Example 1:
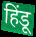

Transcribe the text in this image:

हिंडू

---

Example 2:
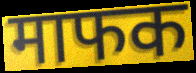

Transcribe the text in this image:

माफक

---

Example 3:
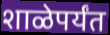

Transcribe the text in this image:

शाळेपर्यंत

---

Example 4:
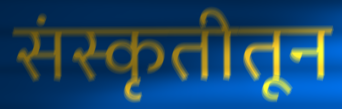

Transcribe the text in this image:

संस्कृतीतून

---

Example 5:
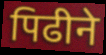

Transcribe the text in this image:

पिढीने